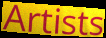
Artists